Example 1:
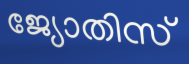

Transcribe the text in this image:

ജ്യോതിസ്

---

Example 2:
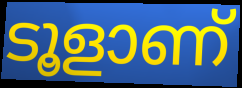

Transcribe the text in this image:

ടൂളാണ്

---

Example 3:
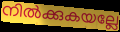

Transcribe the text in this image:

നിൽക്കുകയല്ലേ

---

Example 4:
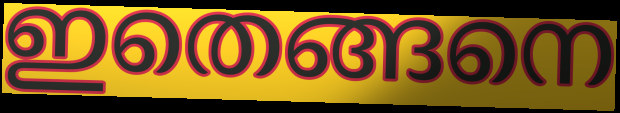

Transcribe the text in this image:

ഇതെങ്ങനെ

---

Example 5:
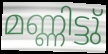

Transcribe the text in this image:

മണ്ണിട്ടു്